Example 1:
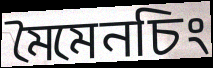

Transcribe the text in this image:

মৈমেনচিং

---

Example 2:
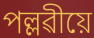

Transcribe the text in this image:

পল্লৱীয়ে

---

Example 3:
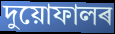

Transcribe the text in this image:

দুয়োফালৰ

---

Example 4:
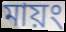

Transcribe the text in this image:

মায়ং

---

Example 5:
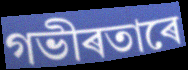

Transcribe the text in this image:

গভীৰতাৰে